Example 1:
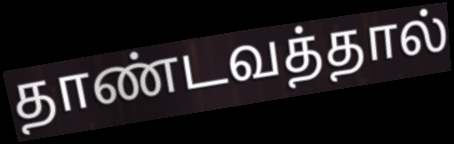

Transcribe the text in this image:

தாண்டவத்தால்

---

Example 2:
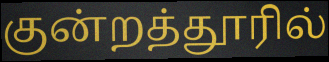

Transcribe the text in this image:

குன்றத்தூரில்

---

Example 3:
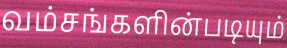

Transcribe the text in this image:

வம்சங்களின்படியும்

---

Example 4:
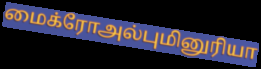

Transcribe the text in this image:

மைக்ரோஅல்புமினுரியா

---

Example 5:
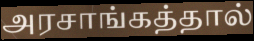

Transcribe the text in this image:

அரசாங்கத்தால்